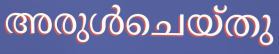
അരുൾചെയ്തു